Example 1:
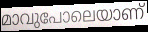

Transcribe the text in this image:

മാവുപോലെയാണ്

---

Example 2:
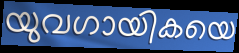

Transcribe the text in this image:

യുവഗായികയെ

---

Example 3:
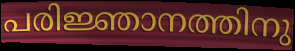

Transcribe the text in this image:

പരിജ്ഞാനത്തിനു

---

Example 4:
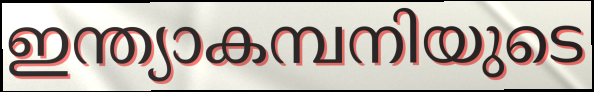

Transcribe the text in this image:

ഇന്ത്യാകമ്പനിയുടെ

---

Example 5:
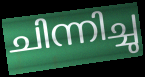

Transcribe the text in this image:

ചിന്നിച്ചു